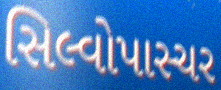
સિલ્વોપાસ્ચર